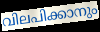
വിലപിക്കാനും